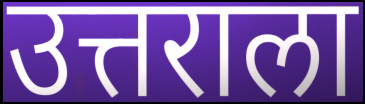
उत्तराला